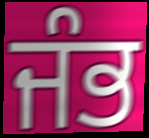
ਜੰਭ